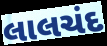
લાલચંદ